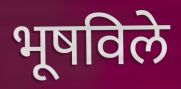
भूषविले